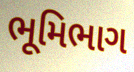
ભૂમિભાગ